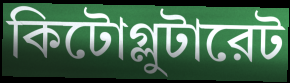
কিটোগ্লুটারেট